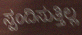
ಸ್ಪಂದಿಸುತ್ತಿಲ್ಲ